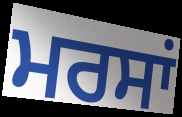
ਮਰਸਾਂ